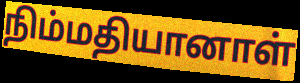
நிம்மதியானாள்